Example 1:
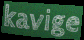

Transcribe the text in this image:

kavige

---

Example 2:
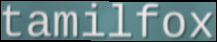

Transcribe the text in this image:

tamilfox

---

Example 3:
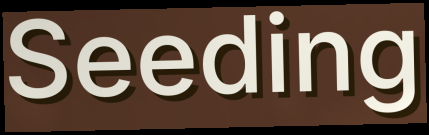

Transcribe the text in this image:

Seeding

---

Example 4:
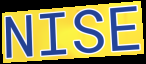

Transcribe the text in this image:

NISE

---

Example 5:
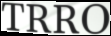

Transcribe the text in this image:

TRRO